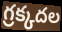
గ్రక్కదల